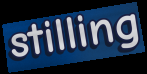
stilling